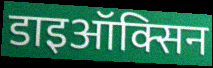
डाइऑक्सिन